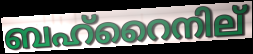
ബഹ്റൈനില്